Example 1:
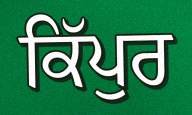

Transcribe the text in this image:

ਕਿੱਪੁਰ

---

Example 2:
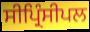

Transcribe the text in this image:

ਸੀਪ੍ਰਿੰਸੀਪਲ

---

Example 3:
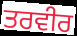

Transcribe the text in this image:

ਤਰਵੀਰ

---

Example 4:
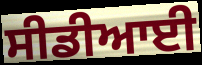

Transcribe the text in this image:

ਸੀਡੀਆਈ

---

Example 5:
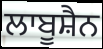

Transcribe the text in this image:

ਲਾਬੂਸ਼ੈਨ